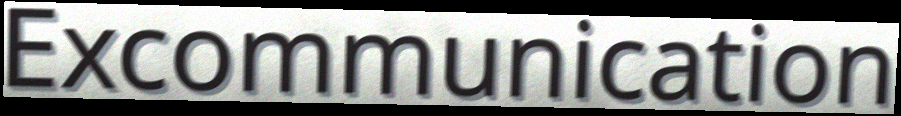
Excommunication